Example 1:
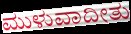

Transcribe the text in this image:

ಮುಳುವಾದೀತು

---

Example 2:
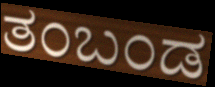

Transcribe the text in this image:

ತಂಬಂಡ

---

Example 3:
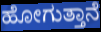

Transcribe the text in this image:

ಹೋಗುತ್ತಾನೆ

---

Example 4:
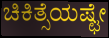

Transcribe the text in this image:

ಚಿಕಿತ್ಸೆಯಷ್ಟೇ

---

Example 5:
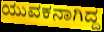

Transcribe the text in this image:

ಯುವಕನಾಗಿದ್ದ